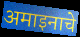
अमाइनाचे